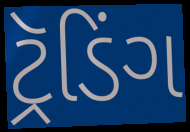
ટ્રૅડિંગ